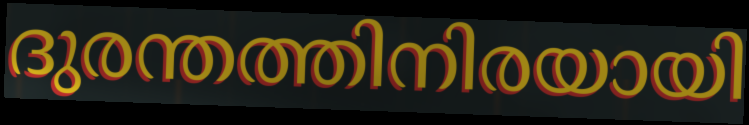
ദുരന്തത്തിനിരയായി